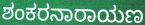
ಶಂಕರನಾರಾಯಣ